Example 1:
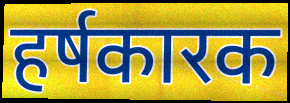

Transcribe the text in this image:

हर्षकारक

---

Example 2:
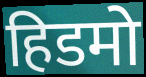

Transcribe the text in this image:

हिडमो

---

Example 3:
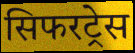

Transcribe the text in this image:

सिफरट्रेस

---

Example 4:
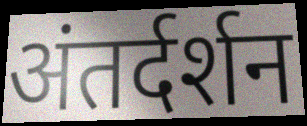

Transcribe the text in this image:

अंतर्दर्शन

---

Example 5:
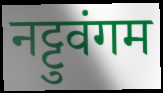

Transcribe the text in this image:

नट्टुवंगम